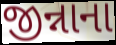
જીન્નાના